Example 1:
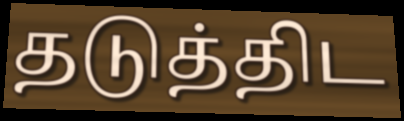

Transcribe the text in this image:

தடுத்திட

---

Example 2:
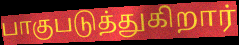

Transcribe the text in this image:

பாகுபடுத்துகிறார்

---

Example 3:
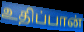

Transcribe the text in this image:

உதிப்பான்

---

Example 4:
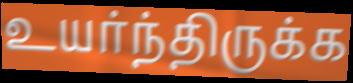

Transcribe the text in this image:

உயர்ந்திருக்க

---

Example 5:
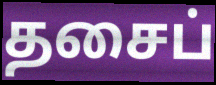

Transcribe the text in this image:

தசைப்